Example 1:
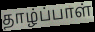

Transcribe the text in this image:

தாழ்ப்பாள்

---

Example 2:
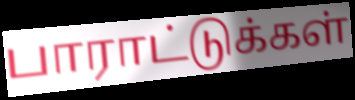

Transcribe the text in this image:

பாராட்டுக்கள்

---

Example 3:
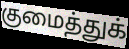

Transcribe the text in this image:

குமைத்துக்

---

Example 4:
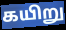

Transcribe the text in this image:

கயிறு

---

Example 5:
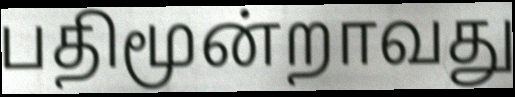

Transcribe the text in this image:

பதிமூன்றாவது